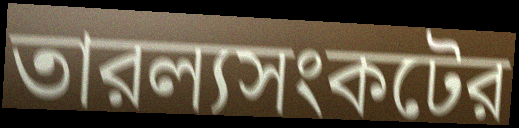
তারল্যসংকটের